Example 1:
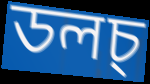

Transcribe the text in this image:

ডলচ্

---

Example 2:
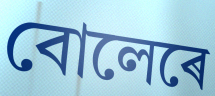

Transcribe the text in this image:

বোলেৰে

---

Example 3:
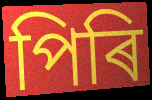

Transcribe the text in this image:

পিৰি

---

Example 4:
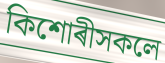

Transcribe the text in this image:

কিশোৰীসকলে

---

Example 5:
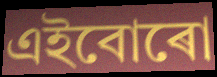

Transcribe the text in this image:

এইবোৰো